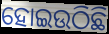
ହୋଇଉଠିଛି